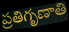
ప్రతిగృణాతి